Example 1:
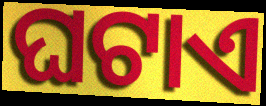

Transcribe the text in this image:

ଘଟାଏ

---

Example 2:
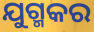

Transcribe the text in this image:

ଯୁଗ୍ମକର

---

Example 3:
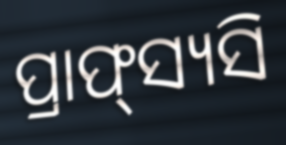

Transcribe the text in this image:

ପ୍ରାଫ୍‌ସ୍ୟସି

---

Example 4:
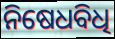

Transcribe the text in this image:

ନିଷେଧବିଧି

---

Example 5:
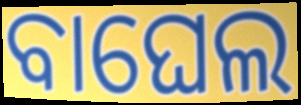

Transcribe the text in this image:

ବାଘେଲ